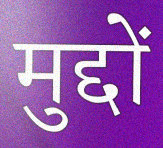
मुद्दों